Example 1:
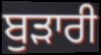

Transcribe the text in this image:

ਬੁੜਾਰੀ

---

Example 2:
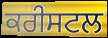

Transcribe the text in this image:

ਕਰੀਸਟਲ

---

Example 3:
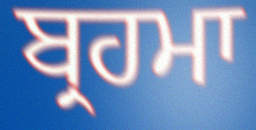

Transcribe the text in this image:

ਬ੍ਰਹਮਾ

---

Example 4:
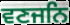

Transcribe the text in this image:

ਵਣਜਨਿ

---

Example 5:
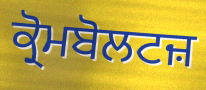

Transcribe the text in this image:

ਕ੍ਰੋਮਬੋਲਟਜ਼